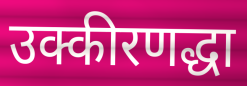
उक्कीरणद्धा